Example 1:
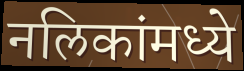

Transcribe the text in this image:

नलिकांमध्ये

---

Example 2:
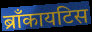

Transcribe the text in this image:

ब्राँकायटिस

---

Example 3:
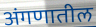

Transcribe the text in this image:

अंगणातील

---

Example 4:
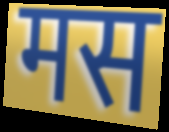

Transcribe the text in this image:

मस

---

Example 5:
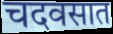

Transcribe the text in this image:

चदवसात